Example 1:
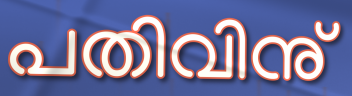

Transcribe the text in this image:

പതിവിനു്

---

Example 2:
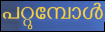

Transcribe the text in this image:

പറ്റുമ്പോൾ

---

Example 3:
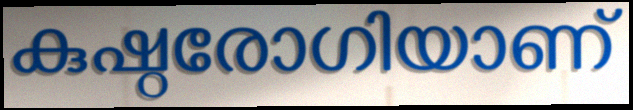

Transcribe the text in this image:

കുഷ്ഠരോഗിയാണ്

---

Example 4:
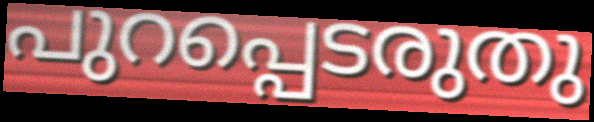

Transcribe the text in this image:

പുറപ്പെടരുതു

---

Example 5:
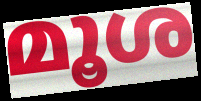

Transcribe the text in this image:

മൂശ